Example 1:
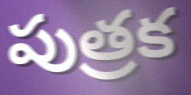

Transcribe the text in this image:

పుత్రక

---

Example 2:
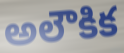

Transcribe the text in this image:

అలౌకిక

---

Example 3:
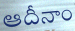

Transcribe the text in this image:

ఆదీనాం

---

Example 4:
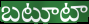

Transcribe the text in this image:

బటూటా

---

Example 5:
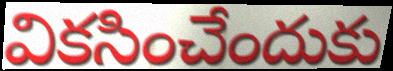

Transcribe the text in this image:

వికసించేందుకు